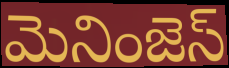
మెనింజెస్